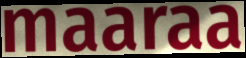
maaraa